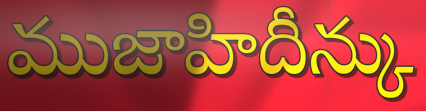
ముజాహిదీన్కు